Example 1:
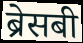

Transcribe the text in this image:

ब्रेसबी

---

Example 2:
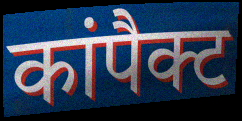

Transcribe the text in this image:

कांपैक्ट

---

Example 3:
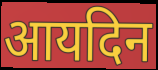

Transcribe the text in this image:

आयदिन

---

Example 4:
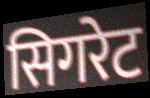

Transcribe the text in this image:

सिगरेट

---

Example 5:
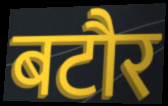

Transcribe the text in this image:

बटौर